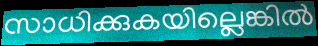
സാധിക്കുകയില്ലെങ്കിൽ